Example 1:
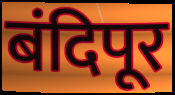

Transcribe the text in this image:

बंदिपूर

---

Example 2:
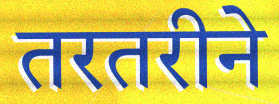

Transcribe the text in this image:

तरतरीने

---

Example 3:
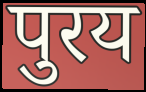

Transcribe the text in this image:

पुरय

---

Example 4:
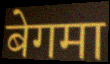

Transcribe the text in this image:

बेगमा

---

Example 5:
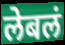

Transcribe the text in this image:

लेबलं